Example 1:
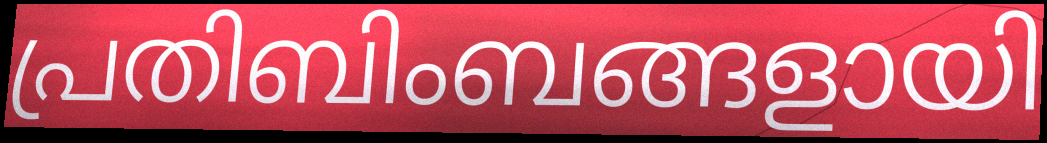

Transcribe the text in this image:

പ്രതിബിംബങ്ങളായി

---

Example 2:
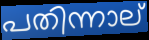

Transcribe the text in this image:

പതിന്നാല്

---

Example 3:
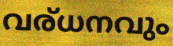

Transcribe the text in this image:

വര്ധനവും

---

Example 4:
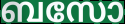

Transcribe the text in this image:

ബസോ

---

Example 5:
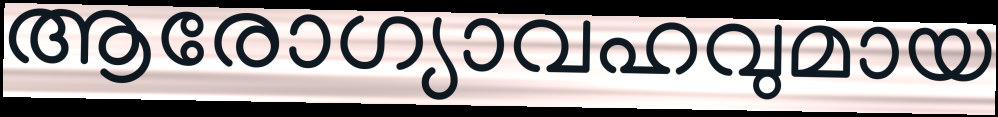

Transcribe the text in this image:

ആരോഗ്യാവഹവുമായ